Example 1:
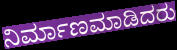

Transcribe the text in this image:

ನಿರ್ಮಾಣಮಾಡಿದರು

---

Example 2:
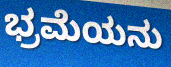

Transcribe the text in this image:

ಭ್ರಮೆಯನು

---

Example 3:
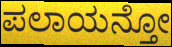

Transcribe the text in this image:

ಪಲಾಯನ್ತೋ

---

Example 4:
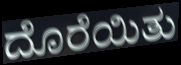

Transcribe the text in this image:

ದೊರೆಯಿತು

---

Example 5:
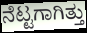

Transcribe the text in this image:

ನೆಟ್ಟಗಾಗಿತ್ತು